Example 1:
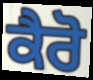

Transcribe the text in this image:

ਕੈਰੋ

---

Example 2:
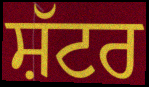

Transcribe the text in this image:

ਸ਼ੱਟਰ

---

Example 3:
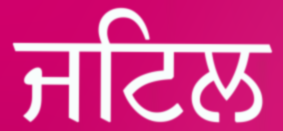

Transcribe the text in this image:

ਜਟਿਲ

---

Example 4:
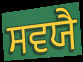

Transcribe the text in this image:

ਸਵਯੈ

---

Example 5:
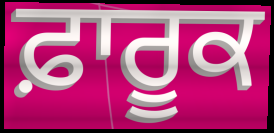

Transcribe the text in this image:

ਫ਼ਾਰੂਕ